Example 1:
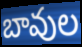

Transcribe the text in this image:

బావుల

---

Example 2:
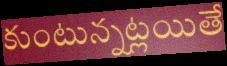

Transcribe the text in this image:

కుంటున్నట్లయితే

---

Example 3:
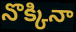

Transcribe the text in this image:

నొక్కినా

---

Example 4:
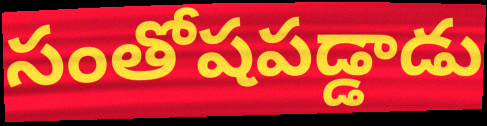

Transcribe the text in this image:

సంతోషపడ్డాడు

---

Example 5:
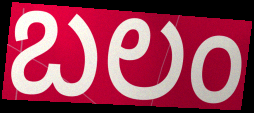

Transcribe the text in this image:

బలం